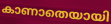
കാണാതെയായി